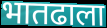
भातढाला